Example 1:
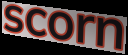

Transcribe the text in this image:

scorn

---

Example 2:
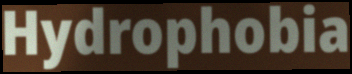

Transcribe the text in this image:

Hydrophobia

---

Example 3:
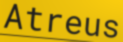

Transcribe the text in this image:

Atreus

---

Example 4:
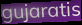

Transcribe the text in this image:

gujaratis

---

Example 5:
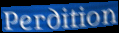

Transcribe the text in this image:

Perdition